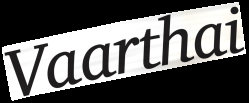
Vaarthai